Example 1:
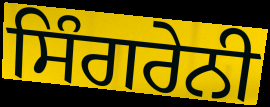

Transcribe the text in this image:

ਸਿੰਗਰੇਨੀ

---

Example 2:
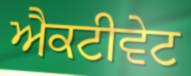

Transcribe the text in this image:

ਐਕਟੀਵੇਟ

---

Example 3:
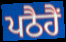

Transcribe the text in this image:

ਪਠੈਹੈਂ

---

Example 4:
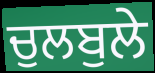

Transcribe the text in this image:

ਚੁਲਬੁਲੇ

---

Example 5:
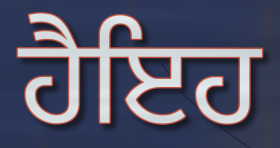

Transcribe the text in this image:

ਹੈਇਹ